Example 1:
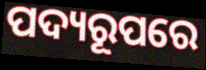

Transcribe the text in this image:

ପଦ୍ୟରୂପରେ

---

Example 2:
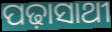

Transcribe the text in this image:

ପଢ଼ାସାଥୀ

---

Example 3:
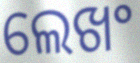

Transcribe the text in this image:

ଲେଖଂ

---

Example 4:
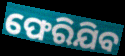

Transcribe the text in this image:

ଫେରିଯିବ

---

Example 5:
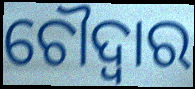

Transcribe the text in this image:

ଚୌଦ୍ବାର